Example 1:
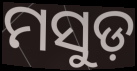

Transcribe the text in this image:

ମସୁଡ଼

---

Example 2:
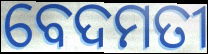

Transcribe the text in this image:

ବେଦମତୀ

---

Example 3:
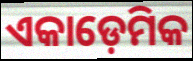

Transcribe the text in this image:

ଏକାଡ଼େମିକ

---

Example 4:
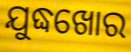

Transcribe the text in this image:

ଯୁଦ୍ଧଖୋର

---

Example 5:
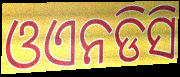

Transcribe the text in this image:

ଓଏନଡିସି